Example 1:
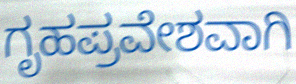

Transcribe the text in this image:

ಗೃಹಪ್ರವೇಶವಾಗಿ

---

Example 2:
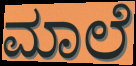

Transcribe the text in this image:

ಮಾಲೆ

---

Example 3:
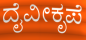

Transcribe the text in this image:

ದೈವೀಕೃಪೆ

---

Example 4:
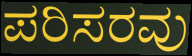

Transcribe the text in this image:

ಪರಿಸರವು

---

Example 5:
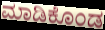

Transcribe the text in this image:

ಮಾಡಿಕೊಂಡ